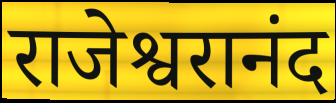
राजेश्वरानंद